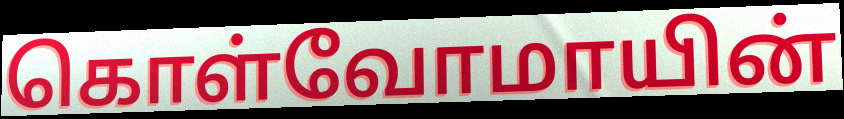
கொள்வோமாயின்